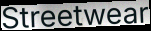
Streetwear